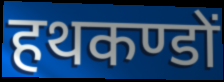
हथकण्डों